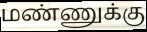
மண்ணுக்கு